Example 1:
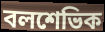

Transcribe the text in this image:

বলশেভিক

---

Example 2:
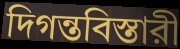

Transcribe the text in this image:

দিগন্তবিস্তারী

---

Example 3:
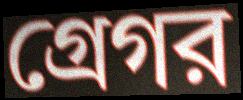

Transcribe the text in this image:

গ্রেগর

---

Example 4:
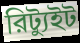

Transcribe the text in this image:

রিট্যুইট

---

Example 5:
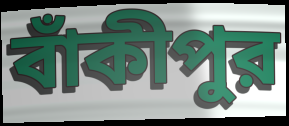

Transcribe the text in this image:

বাঁকীপুর